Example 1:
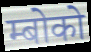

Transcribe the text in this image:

म्बोको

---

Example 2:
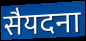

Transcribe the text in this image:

सैयदना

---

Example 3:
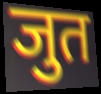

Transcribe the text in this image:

जुत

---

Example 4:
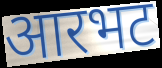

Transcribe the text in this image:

आरभट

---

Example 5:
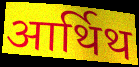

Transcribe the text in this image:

आर्थिथ